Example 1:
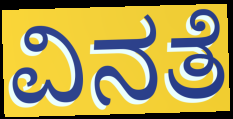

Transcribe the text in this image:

ವಿನತೆ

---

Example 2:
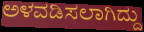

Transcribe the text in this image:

ಅಳವಡಿಸಲಾಗಿದ್ದು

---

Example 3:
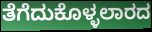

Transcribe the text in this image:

ತೆಗೆದುಕೊಳ್ಳಲಾರದ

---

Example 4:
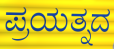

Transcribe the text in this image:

ಪ್ರಯತ್ನದ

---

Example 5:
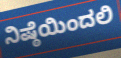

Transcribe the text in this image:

ನಿಷ್ಠೆಯಿಂದಲಿ